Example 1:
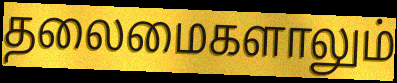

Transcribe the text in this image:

தலைமைகளாலும்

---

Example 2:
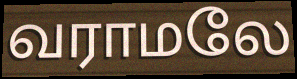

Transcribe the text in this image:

வராமலே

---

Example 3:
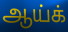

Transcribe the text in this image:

ஆய்க்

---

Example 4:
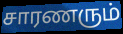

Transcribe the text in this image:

சாரணரும்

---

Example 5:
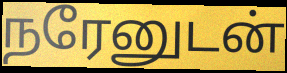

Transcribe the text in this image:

நரேனுடன்